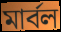
মাৰ্বল